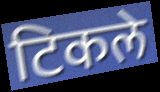
टिकले